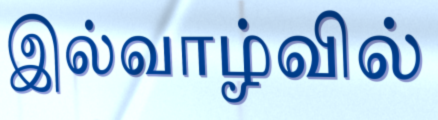
இல்வாழ்வில்